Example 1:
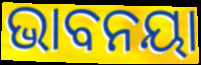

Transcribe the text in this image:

ଭାବନୟା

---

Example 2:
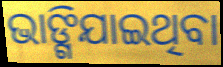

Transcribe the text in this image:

ଭାଙ୍ଗିଯାଇଥିବା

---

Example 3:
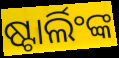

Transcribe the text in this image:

ଷ୍ଟାର୍ଲିଂଙ୍କ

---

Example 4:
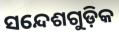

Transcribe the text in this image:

ସନ୍ଦେଶଗୁଡ଼ିକ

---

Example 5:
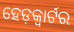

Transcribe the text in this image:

ହେଡ଼କ୍ୱାର୍ଟର